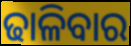
ଢାଳିବାର